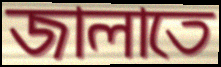
জালাতে